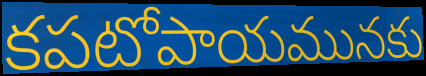
కపటోపాయమునకు